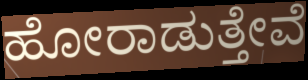
ಹೋರಾಡುತ್ತೇವೆ